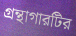
গ্রন্থাগারটির